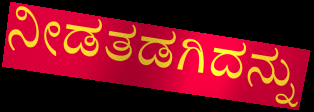
ನೀಡತಡಗಿದನ್ನು